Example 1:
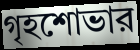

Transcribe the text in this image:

গৃহশোভার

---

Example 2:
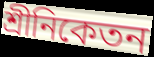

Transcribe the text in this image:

শ্রীনিকেতন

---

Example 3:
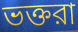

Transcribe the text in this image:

ভক্তরা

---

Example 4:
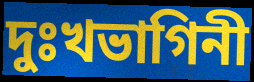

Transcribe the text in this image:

দুঃখভাগিনী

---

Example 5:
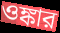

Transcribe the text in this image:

ওঙ্কার